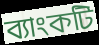
ব্যাংকটি